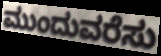
ಮುಂದುವರೆಸು